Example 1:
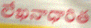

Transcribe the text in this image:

లేఖనాధారిత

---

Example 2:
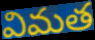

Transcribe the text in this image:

విమత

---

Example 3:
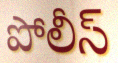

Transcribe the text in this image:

పోలీస్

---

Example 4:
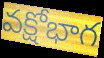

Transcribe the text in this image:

వక్షోభాగ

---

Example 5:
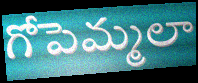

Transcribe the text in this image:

గోపెమ్మలా